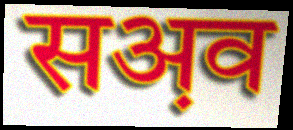
सअ़व